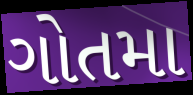
ગોતમા